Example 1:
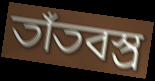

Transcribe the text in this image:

তাঁতবস্ত্র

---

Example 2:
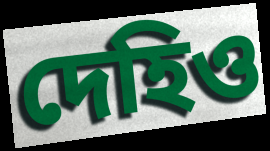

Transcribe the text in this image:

দেহিও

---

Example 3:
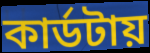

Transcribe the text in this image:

কার্ডটায়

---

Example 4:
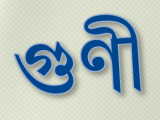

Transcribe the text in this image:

গুণী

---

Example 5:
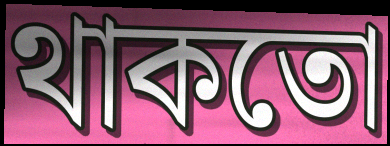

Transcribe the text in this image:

থাকতো